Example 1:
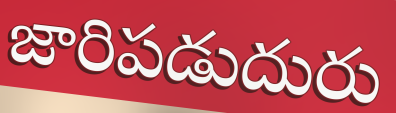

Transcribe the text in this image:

జారిపడుదురు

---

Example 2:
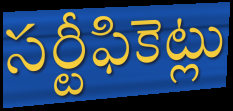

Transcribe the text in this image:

సర్టీఫికెట్లు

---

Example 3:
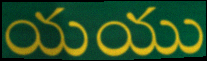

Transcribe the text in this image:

యయు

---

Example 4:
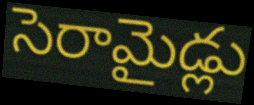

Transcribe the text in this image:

సెరామైడ్లు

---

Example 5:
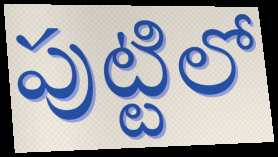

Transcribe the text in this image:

పుట్టిలో